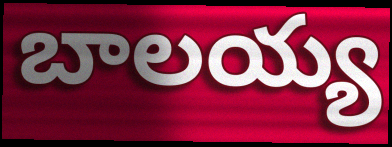
బాలయ్య